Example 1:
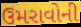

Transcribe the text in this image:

ઉમરાવોની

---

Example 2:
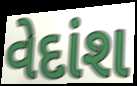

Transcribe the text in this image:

વેદાંશ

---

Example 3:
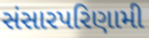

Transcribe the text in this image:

સંસારપરિણામી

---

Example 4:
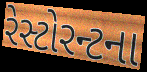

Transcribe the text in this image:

રેસ્ટોરન્ટના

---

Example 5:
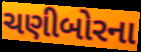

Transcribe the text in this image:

ચણીબોરના